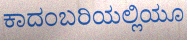
ಕಾದಂಬರಿಯಲ್ಲಿಯೂ